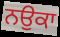
ਨਉਕਾ